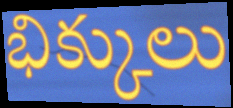
భిక్కులు